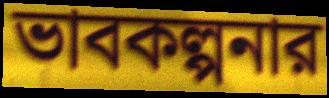
ভাবকল্পনার